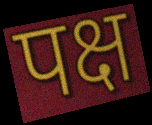
पक्ष